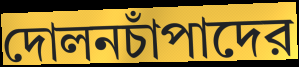
দোলনচাঁপাদের